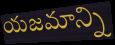
యజమాన్ని